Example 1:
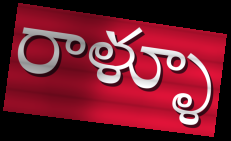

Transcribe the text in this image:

రాళ్ళూ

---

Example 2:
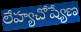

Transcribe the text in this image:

లేహ్యచోష్యేణ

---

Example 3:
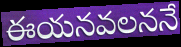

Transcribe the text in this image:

ఈయనవలననే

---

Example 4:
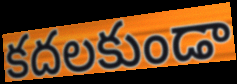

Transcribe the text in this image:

కదలకుండా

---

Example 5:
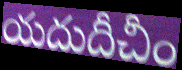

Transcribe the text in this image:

యదుదీచీం